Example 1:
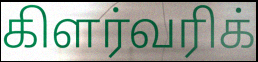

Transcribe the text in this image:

கிளர்வரிக்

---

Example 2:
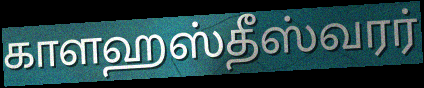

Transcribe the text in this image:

காளஹஸ்தீஸ்வரர்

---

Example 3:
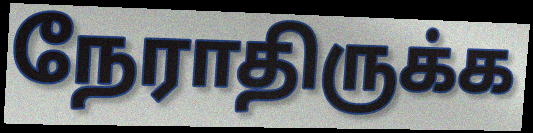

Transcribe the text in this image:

நேராதிருக்க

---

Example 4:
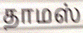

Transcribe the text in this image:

தாமஸ்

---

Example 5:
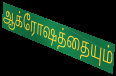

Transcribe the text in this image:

ஆக்ரோஷத்தையும்